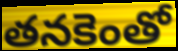
తనకెంతో